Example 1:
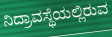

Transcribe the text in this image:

ನಿದ್ರಾವಸ್ಥೆಯಲ್ಲಿರುವ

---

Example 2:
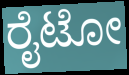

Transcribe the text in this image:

ರೈಟೋ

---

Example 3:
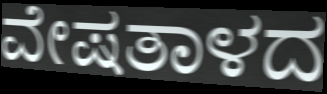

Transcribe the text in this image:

ವೇಷತಾಳದ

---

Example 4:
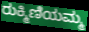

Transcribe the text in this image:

ರುಕ್ಮಿಣಿಯಮ್ಮ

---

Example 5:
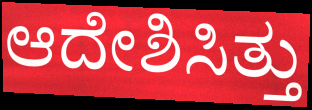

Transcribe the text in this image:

ಆದೇಶಿಸಿತ್ತು